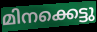
മിനക്കെട്ടു